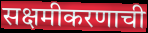
सक्षमीकरणाची